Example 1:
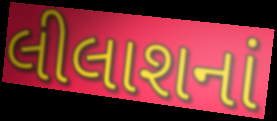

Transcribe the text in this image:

લીલાશનાં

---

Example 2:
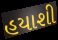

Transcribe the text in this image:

હયાશી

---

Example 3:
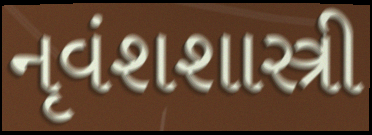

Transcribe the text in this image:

નૃવંશશાસ્ત્રી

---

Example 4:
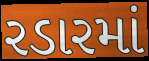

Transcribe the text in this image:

રડારમાં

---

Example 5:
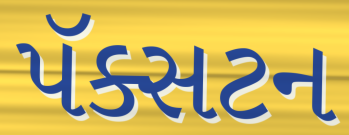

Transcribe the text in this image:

પૅક્સટન